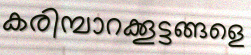
കരിമ്പാറക്കൂട്ടങ്ങളെ